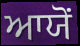
ਆਯੋਂ